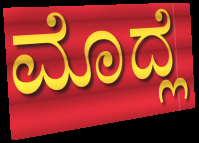
ಮೊದ್ಲೆ